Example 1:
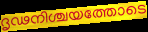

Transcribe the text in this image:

ദൃഢനിശ്ചയത്തോടെ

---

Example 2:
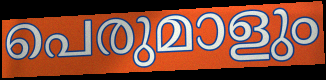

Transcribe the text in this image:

പെരുമാളും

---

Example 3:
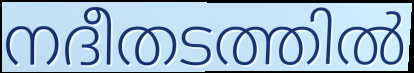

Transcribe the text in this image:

നദീതടത്തിൽ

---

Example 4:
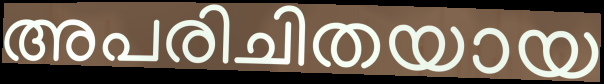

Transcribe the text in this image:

അപരിചിതയായ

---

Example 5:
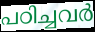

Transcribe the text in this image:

പഠിച്ചവർ